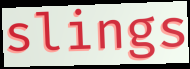
slings